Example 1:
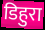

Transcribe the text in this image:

डिहुरा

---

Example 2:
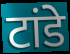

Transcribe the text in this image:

टांडे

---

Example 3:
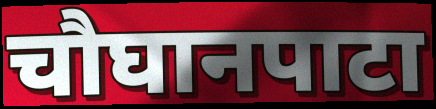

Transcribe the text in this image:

चौघानपाटा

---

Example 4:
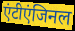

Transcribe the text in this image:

एंटीएंजिनल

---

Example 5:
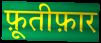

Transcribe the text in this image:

फ़ूतीफ़ार